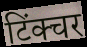
टिंक्चर